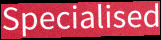
Specialised